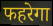
फहरेगा